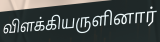
விளக்கியருளினார்